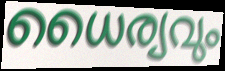
ധൈര്യവും